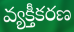
వ్యక్తీకరణ